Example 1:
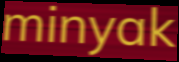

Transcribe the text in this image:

minyak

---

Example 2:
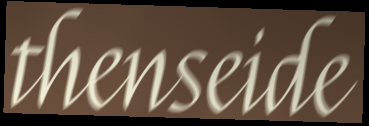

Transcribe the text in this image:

thenseide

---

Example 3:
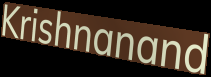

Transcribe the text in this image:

Krishnanand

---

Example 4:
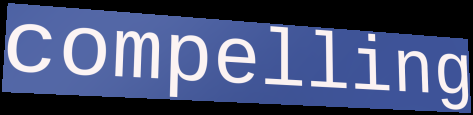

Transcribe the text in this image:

compelling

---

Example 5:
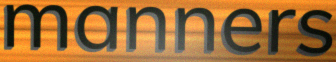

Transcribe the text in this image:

manners